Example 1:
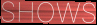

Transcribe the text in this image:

SHOWS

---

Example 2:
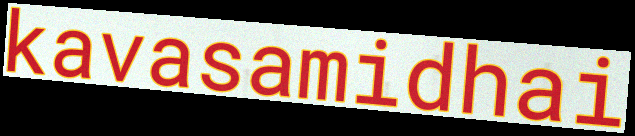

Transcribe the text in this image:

kavasamidhai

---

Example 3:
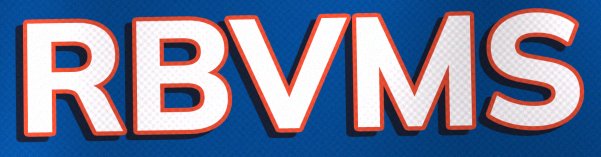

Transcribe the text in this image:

RBVMS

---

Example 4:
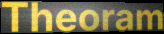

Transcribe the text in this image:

Theoram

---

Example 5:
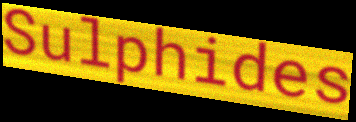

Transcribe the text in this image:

Sulphides